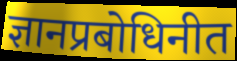
ज्ञानप्रबोधिनीत